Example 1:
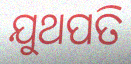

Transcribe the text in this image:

ଯୁଥପତି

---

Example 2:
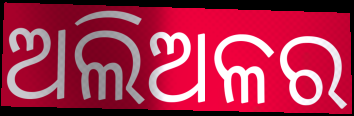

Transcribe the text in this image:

ଅଲିଅଳର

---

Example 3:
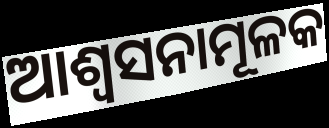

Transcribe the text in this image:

ଆଶ୍ୱସନାମୂଳକ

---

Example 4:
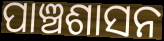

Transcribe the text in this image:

ପାଞ୍ଚଶାସନ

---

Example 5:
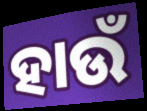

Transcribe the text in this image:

ହାଉଁ